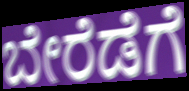
ಬೇರೆಡೆಗೆ